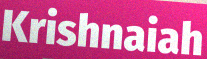
Krishnaiah